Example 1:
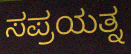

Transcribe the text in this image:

ಸಪ್ರಯತ್ನ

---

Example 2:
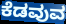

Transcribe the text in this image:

ಕೆಡವುವ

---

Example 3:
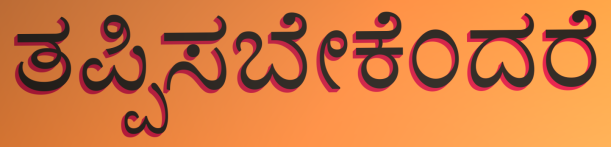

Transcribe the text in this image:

ತಪ್ಪಿಸಬೇಕೆಂದರೆ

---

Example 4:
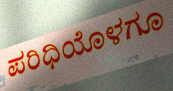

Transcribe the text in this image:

ಪರಿಧಿಯೊಳಗೂ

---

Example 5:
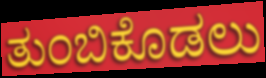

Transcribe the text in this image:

ತುಂಬಿಕೊಡಲು